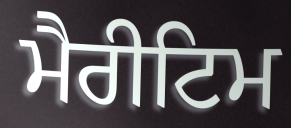
ਮੈਰੀਟਿਮ